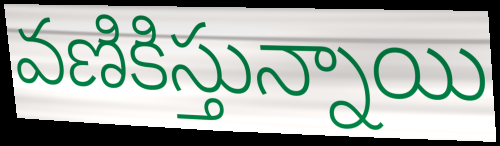
వణికిస్తున్నాయి